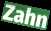
Zahn